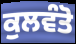
ਕੁਲਵੰਤੋ